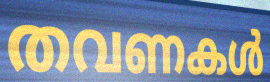
തവണകൾ